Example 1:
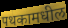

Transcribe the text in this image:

पथकामधील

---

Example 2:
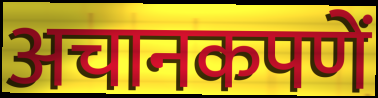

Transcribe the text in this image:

अचानकपणें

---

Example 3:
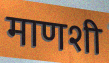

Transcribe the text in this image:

माणशी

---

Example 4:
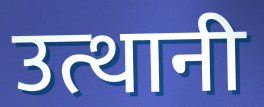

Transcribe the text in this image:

उत्थानी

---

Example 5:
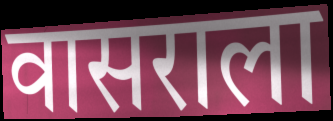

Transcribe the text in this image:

वासराला